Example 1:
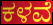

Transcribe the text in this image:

ಕಳವೆ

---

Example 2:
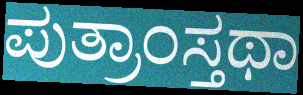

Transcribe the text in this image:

ಪುತ್ರಾಂಸ್ತಥಾ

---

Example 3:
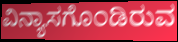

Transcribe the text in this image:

ವಿನ್ಯಾಸಗೊಂಡಿರುವ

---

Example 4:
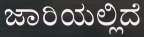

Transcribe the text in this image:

ಜಾರಿಯಲ್ಲಿದೆ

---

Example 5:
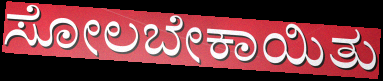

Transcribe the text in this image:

ಸೋಲಬೇಕಾಯಿತು